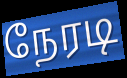
நேரடி